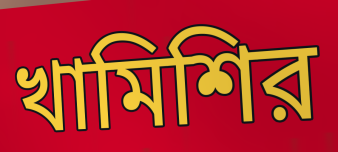
খামিশির